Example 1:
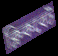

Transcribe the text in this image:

ক্লিকবেট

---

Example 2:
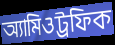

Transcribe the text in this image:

অ্যামিওট্রফিক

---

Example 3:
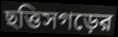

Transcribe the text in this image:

ছত্তিসগড়ের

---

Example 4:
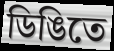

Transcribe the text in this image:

ডিঙিতে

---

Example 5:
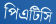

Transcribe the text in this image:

পিএটিসি